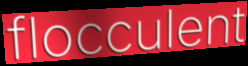
flocculent